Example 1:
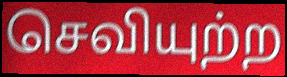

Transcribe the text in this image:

செவியுற்ற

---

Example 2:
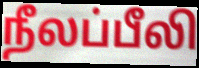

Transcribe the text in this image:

நீலப்பீலி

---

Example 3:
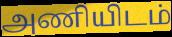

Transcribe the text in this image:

அணியிடம்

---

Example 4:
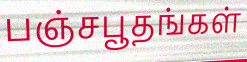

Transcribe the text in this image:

பஞ்சபூதங்கள்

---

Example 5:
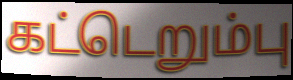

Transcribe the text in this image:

கட்டெறும்பு